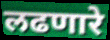
लढणारे